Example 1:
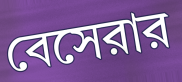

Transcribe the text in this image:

বেসেরার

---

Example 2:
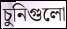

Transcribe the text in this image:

চুনিগুলো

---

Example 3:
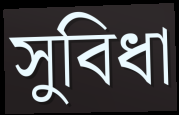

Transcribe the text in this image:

সুবিধা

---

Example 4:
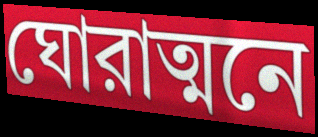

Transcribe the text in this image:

ঘোরাত্মনে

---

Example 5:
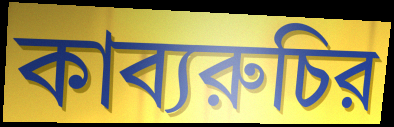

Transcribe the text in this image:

কাব্যরুচির